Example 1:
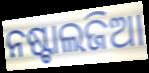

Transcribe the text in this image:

ନଷ୍ଟାଲଜିଆ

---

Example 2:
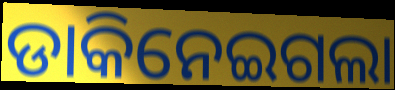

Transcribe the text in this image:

ଡାକିନେଇଗଲା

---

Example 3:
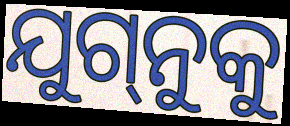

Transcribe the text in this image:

ଯୁଗ୍‌ନୁକୁ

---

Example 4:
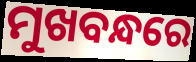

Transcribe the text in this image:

ମୁଖବନ୍ଧରେ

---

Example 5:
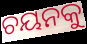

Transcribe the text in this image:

ଚୟନକୁ